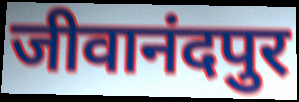
जीवानंदपुर